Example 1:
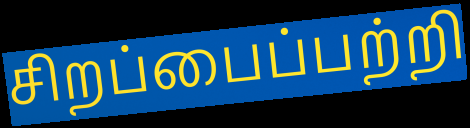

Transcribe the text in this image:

சிறப்பைப்பற்றி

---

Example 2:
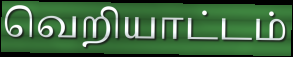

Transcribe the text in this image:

வெறியாட்டம்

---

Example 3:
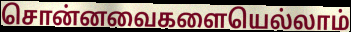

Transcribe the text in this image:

சொன்னவைகளையெல்லாம்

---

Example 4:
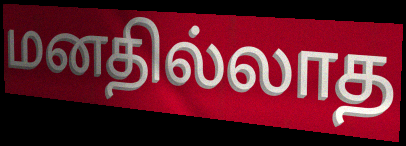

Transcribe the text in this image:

மனதில்லாத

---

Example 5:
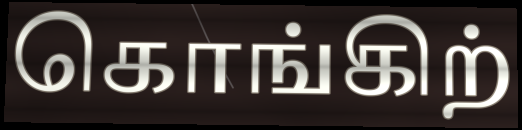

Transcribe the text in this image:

கொங்கிற்